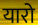
यारो